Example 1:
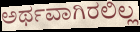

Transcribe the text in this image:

ಅರ್ಥವಾಗಿರಲಿಲ್ಲ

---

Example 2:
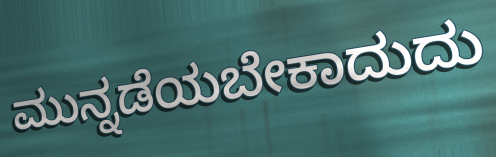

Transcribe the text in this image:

ಮುನ್ನಡೆಯಬೇಕಾದುದು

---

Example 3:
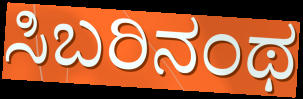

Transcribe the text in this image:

ಸಿಬರಿನಂಥ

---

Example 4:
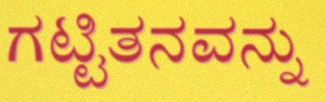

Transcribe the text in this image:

ಗಟ್ಟಿತನವನ್ನು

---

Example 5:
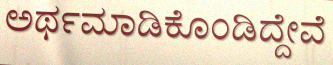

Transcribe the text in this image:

ಅರ್ಥಮಾಡಿಕೊಂಡಿದ್ದೇವೆ